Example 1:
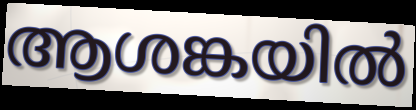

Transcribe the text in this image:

ആശങ്കയിൽ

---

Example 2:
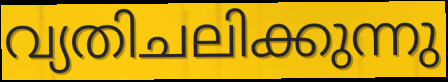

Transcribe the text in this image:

വ്യതിചലിക്കുന്നു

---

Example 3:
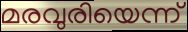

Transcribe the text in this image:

മരവുരിയെന്ന്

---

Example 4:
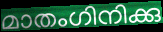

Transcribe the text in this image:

മാതംഗിനിക്കു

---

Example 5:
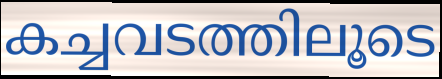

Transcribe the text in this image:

കച്ചവടത്തിലൂടെ